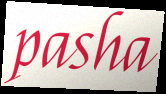
pasha